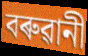
বৰুৱানী